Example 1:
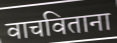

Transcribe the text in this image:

वाचविताना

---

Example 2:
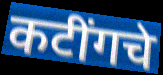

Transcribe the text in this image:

कटींगचे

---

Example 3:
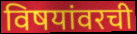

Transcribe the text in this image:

विषयांवरची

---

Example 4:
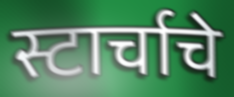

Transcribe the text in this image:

स्टार्चाचे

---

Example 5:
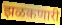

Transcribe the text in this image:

झळकणारी